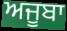
ਅਜੂਬਾ